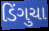
ડિંગુચા